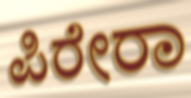
ಪಿರೇರಾ